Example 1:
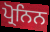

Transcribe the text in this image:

ਪ੍ਰੋਨਿਨ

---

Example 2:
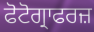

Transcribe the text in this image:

ਫੋਟੋਗ੍ਰਾਫਰਜ਼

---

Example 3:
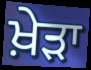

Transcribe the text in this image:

ਖ਼ੇੜਾ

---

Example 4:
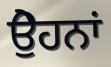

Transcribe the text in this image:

ਉੇਹਨਾਂ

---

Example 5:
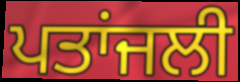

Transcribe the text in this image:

ਪਤਾਂਜਲੀ